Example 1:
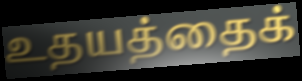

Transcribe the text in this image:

உதயத்தைக்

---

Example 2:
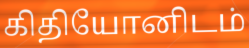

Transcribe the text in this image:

கிதியோனிடம்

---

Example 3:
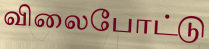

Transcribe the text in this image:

விலைபோட்டு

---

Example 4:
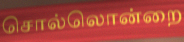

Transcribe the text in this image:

சொல்லொன்றை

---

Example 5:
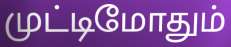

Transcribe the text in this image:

முட்டிமோதும்